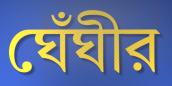
ঘেঁঘীর